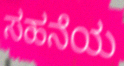
ಸಹನೆಯ